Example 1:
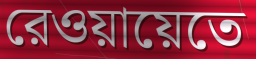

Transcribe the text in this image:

রেওয়ায়েতে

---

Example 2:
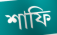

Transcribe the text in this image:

শাফি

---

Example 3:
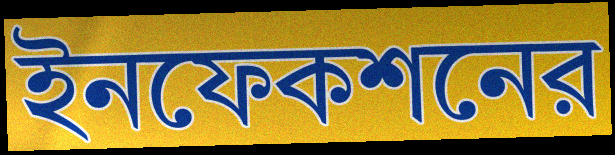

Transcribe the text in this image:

ইনফেকশনের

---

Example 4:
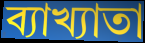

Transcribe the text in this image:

ব্যাখ্যাতা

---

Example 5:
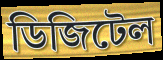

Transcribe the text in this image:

ডিজিটেল